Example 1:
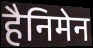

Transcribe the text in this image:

हैनिमेन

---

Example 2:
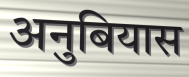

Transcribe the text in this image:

अनुबियास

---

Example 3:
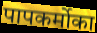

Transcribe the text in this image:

पापकर्मोका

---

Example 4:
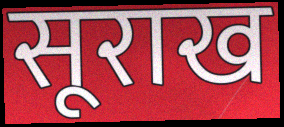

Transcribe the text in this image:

सूराख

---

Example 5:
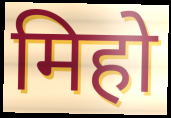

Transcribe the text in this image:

मिहो